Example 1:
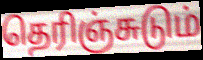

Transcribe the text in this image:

தெரிஞ்சுடும்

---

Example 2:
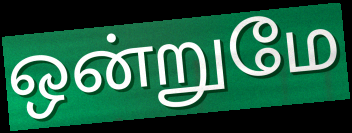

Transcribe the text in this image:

ஒன்றுமே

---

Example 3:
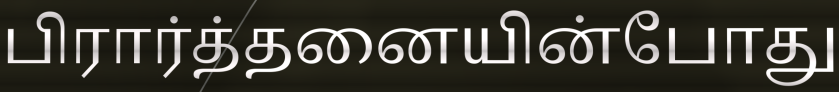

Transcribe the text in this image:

பிரார்த்தனையின்போது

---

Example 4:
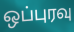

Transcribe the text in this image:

ஒப்புரவு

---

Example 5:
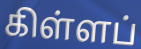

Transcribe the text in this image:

கிள்ளப்